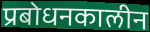
प्रबोधनकालीन